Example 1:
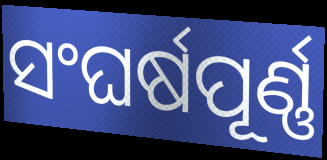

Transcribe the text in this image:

ସଂଘର୍ଷପୂର୍ଣ୍ଣ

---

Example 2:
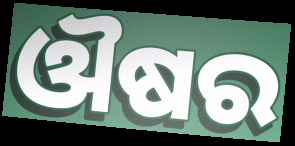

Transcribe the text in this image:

ଔଷର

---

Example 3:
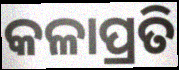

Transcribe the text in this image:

କଳାପ୍ରତି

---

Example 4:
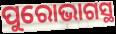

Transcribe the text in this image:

ପୁରୋଭାଗସ୍ଥ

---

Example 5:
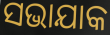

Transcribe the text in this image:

ସଭାଯାକ